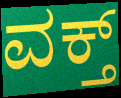
ವಕ್ತ್